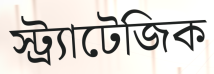
স্ট্র্যাটেজিক